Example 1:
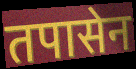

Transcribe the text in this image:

तपासेन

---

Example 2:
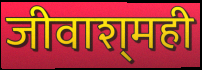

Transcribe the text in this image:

जीवाश्मही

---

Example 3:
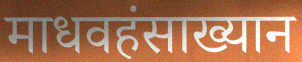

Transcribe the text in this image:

माधवहंसाख्यान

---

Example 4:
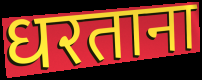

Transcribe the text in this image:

धरताना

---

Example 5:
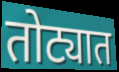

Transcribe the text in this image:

तोट्यात